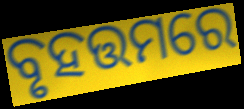
ବୃହତ୍ତମରେ